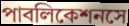
পাবলিকেশনসে